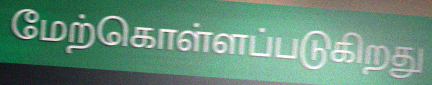
மேற்கொள்ளப்படுகிறது